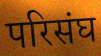
परिसंघ